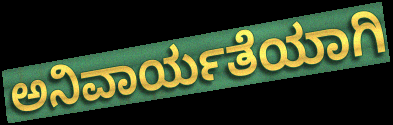
ಅನಿವಾರ್ಯತೆಯಾಗಿ